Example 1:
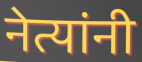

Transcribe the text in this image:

नेत्यांनी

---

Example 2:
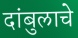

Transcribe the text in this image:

दांबुलाचे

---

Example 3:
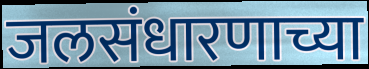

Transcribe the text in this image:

जलसंधारणाच्या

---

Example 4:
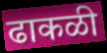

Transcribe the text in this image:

ढाकळी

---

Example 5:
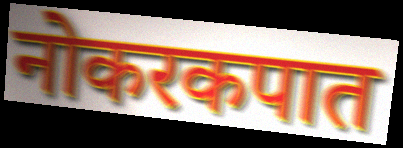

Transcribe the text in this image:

नोकरकपात